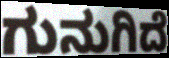
ಗುನುಗಿದೆ